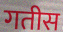
गतीस